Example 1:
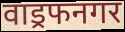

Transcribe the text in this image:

वाड्रफनगर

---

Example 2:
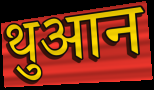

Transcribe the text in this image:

थुआन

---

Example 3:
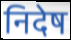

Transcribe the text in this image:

निदेष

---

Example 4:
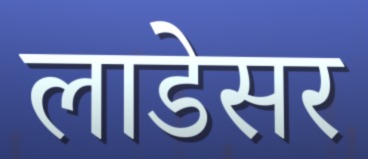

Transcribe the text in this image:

लाडेसर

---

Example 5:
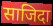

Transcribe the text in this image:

साजिदा